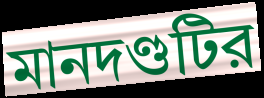
মানদণ্ডটির